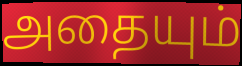
அதையும்